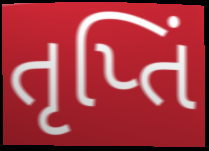
તૃપ્તિં